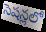
సెషన్లలో